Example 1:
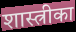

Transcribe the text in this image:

शास्त्रीका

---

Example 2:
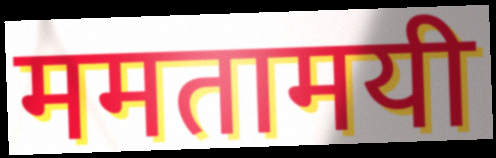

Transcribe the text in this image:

ममतामयी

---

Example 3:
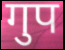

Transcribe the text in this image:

गुप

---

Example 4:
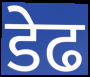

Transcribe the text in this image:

डेढ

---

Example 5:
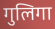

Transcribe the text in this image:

गुलिगा